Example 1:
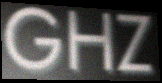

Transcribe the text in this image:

GHZ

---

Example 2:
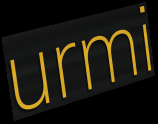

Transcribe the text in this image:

urmi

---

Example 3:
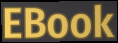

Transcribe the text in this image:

EBook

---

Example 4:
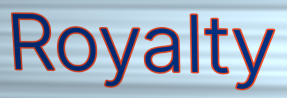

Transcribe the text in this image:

Royalty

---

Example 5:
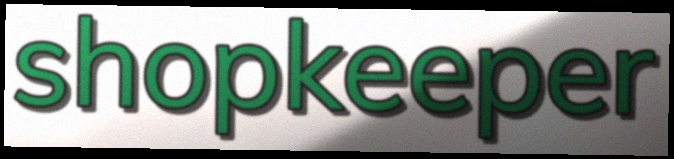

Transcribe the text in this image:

shopkeeper